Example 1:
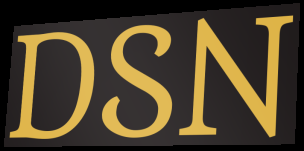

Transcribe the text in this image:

DSN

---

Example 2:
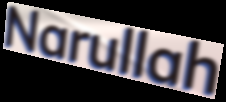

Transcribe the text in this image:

Narullah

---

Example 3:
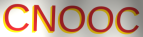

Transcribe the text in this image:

CNOOC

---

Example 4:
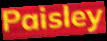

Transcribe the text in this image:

Paisley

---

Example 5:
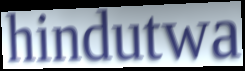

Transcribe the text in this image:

hindutwa